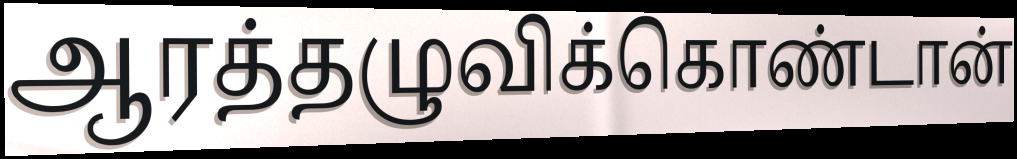
ஆரத்தழுவிக்கொண்டான்